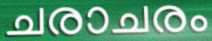
ചരാചരം